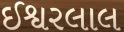
ઈશ્વરલાલ